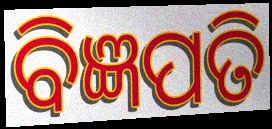
ବିଜ୍ଞପତି